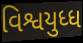
વિશ્વયુધ્ધ